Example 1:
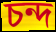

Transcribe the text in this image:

চন্দ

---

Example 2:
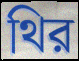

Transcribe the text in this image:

থির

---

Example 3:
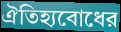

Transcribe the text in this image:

ঐতিহ্যবোধের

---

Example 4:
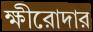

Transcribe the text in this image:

ক্ষীরোদার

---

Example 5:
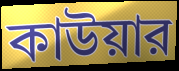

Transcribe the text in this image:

কাউয়ার